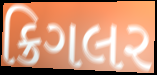
ક્રિગલર